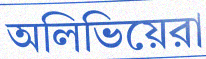
অলিভিয়েরা